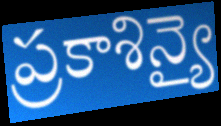
ప్రకాశిన్యై